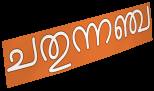
ചതുന്നഞ്ച